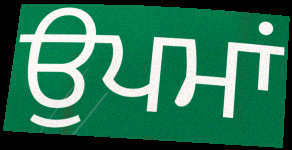
ਉਪਮਾਂ